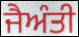
ਜੈਅੰਤੀ